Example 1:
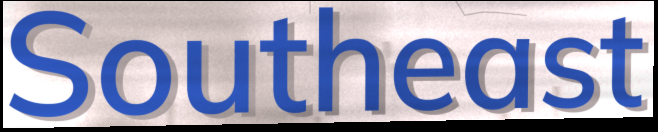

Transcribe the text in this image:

Southeast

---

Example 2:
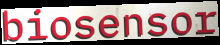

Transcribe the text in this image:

biosensor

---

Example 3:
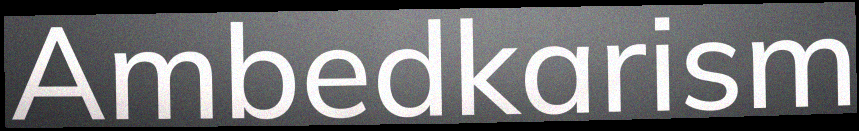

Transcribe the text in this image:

Ambedkarism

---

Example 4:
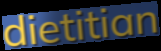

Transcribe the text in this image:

dietitian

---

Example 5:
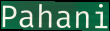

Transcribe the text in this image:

Pahani